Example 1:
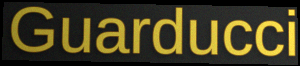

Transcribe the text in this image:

Guarducci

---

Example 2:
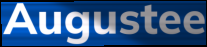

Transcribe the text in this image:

Augustee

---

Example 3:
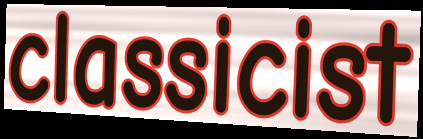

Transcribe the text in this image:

classicist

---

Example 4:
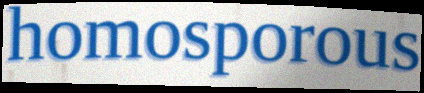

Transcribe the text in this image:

homosporous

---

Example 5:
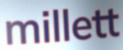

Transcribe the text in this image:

millett